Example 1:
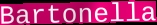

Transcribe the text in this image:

Bartonella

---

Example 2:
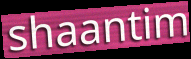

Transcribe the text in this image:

shaantim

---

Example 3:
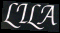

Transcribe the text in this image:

LILA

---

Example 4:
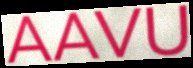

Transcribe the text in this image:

AAVU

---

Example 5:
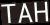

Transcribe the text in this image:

TAH